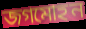
জগমোহন